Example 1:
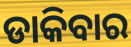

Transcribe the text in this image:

ଡାକିବାର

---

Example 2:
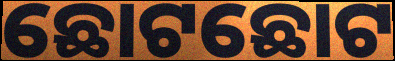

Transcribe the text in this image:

ଛୋଟଛୋଟ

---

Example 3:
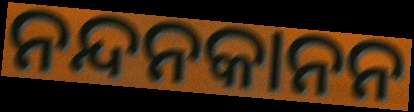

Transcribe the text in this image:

ନନ୍ଦନକାନନ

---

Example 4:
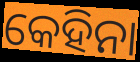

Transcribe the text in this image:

କେହିନା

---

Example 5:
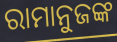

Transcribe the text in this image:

ରାମାନୁଜଙ୍କ